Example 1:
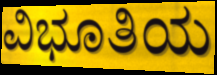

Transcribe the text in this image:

ವಿಭೂತಿಯ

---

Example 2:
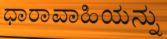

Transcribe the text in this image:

ಧಾರಾವಾಹಿಯನ್ನು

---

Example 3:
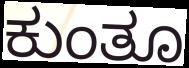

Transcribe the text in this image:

ಕುಂತೂ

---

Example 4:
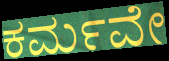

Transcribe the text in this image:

ಕರ್ಮವೇ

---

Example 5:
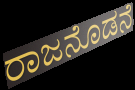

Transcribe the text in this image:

ರಾಜನೊಡನೆ